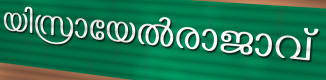
യിസ്രായേൽരാജാവ്